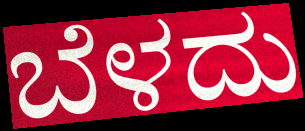
ಬೆಳದು